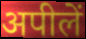
अपीलें